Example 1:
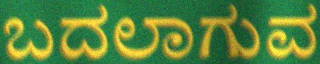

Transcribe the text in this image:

ಬದಲಾಗುವ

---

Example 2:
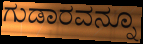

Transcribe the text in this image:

ಗುಡಾರವನ್ನೂ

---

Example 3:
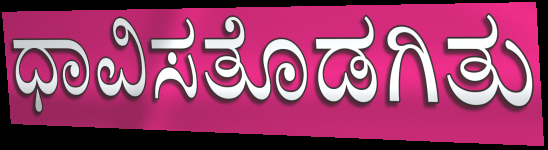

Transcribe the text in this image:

ಧಾವಿಸತೊಡಗಿತು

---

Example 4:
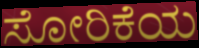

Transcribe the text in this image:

ಸೋರಿಕೆಯ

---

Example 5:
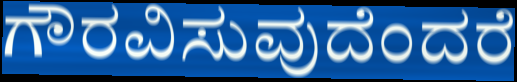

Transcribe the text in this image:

ಗೌರವಿಸುವುದೆಂದರೆ